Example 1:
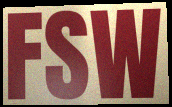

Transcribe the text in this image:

FSW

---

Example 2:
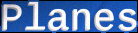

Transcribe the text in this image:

Planes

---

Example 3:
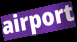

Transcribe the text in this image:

airport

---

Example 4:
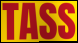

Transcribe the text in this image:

TASS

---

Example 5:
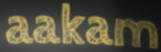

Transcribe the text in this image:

aakam